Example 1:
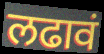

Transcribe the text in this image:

लढावं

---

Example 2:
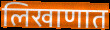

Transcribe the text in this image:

लिखाणात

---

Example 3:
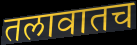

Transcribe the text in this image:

तलावातच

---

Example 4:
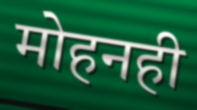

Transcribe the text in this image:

मोहनही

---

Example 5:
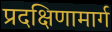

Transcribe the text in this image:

प्रदक्षिणामार्ग